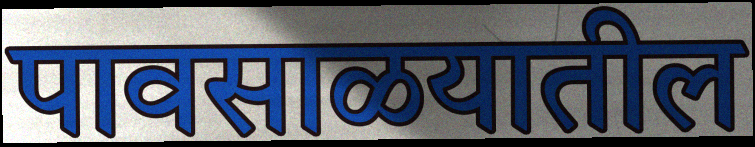
पावसाळयातील